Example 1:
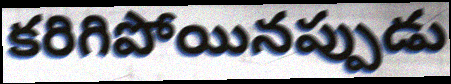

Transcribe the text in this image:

కరిగిపోయినప్పుడు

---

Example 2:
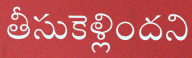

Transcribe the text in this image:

తీసుకెళ్లిందని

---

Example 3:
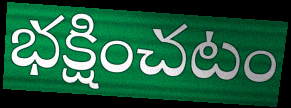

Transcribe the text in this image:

భక్షించటం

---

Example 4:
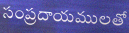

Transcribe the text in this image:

సంప్రదాయములతో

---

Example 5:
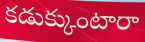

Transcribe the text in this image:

కడుక్కుంటారా